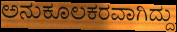
ಅನುಕೂಲಕರವಾಗಿದ್ದು